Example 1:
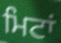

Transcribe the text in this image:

ਮਿਟਾਂ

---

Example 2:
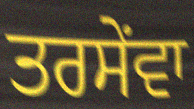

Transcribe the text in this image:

ਤਰਸੇਂਵਾ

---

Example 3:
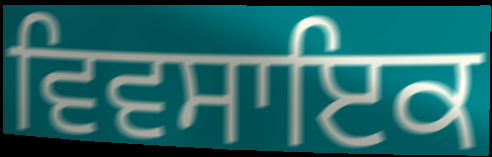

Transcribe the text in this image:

ਵਿਵਸਾਇਕ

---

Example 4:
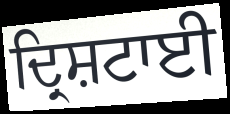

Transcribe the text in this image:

ਦ੍ਰਿਸ਼ਟਾਈ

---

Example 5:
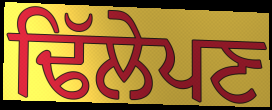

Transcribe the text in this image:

ਢਿੱਲੇਪਣ